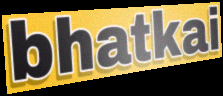
bhatkai